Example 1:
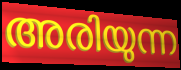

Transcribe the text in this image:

അരിയുന്ന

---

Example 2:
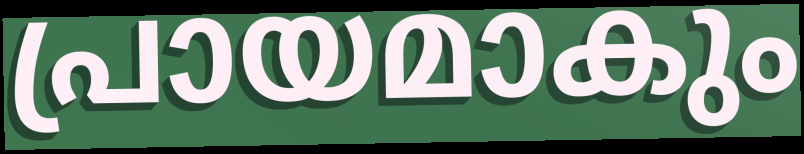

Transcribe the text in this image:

പ്രായമാകും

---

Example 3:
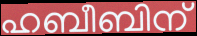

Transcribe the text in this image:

ഹബീബിന്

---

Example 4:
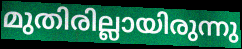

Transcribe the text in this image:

മുതിരില്ലായിരുന്നു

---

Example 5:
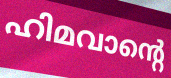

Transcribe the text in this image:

ഹിമവാന്റെ